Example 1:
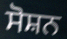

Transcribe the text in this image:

ਸੋਸ਼ਨ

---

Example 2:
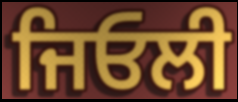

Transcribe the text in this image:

ਜਿਓਲੀ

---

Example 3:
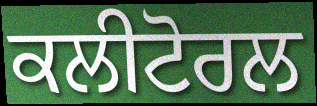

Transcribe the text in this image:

ਕਲੀਟੋਰਲ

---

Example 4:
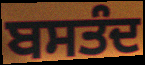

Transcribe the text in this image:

ਬਸਤੰਦ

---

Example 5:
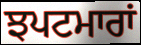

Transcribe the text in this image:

ਝਪਟਮਾਰਾਂ